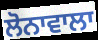
ਲੋਨਾਵਾਲਾ